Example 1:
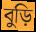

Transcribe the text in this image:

বুড়ি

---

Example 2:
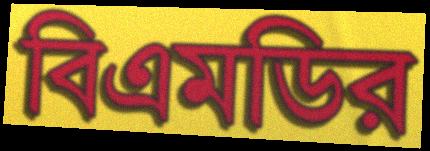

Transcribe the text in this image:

বিএমডির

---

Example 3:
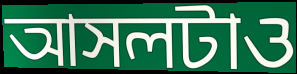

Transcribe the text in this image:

আসলটাও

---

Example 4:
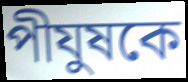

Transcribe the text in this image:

পীযুষকে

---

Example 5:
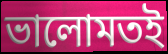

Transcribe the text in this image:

ভালোমতই